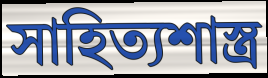
সাহিত্যশাস্ত্র